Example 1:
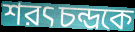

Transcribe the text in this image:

শরৎচন্দ্রকে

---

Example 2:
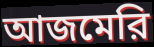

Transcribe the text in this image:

আজমেরি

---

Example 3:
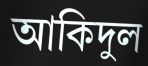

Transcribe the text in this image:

আকিদুল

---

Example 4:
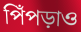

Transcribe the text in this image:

পিঁপড়াও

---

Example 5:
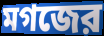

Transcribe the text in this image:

মগজের